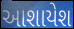
આશાયેશ